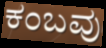
ಕಂಬವು